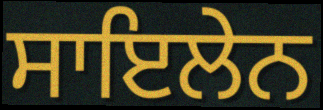
ਸਾਇਲੇਨ